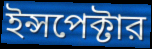
ইন্সপেক্টার